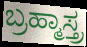
ಬ್ರಹ್ಮಾಸ್ತ್ರ